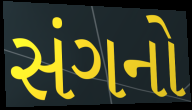
સંગનો